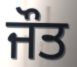
ਜੌਤ